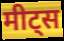
मीट्स